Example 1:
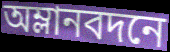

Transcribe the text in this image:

অম্লানবদনে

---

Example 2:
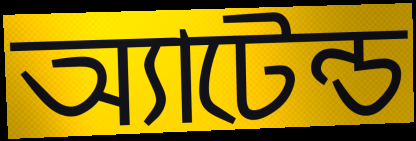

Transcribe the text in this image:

অ্যাটেন্ড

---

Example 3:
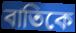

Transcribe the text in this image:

বাতিকে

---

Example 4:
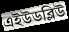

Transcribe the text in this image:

এইউডব্লিউ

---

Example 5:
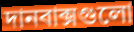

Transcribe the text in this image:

দানবাক্সগুলো